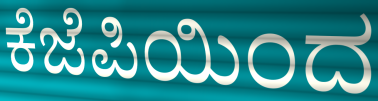
ಕೆಜೆಪಿಯಿಂದ